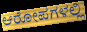
ಆರೋಪಗಳಲ್ಲಿ